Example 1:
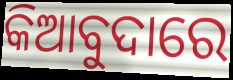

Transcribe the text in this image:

କିଆବୁଦାରେ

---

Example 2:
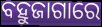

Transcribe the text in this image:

ବହୁଜାଗାରେ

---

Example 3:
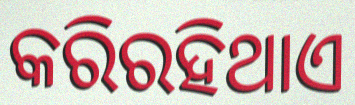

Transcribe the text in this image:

କରିରହିଥାଏ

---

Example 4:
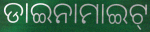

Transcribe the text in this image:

ଡାଇନାମାଇଟ୍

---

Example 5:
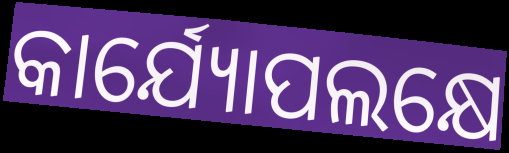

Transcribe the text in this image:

କାର୍ଯ୍ୟୋପଲକ୍ଷେ